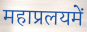
महाप्रलयमें